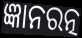
ଜ୍ଞାନରତ୍ନ